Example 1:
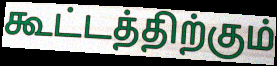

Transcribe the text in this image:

கூட்டத்திற்கும்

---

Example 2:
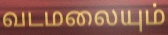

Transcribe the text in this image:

வடமலையும்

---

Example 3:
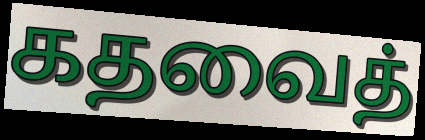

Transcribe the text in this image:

கதவைத்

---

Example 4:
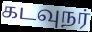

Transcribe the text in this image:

கடவுநர்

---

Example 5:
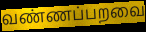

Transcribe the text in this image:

வண்ணப்பறவை